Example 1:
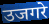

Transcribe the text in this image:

उजगरे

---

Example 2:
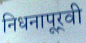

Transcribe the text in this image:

निधनापूर्वी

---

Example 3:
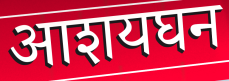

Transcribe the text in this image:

आशयघन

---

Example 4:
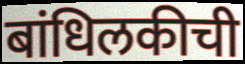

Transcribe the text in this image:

बांधिलकीची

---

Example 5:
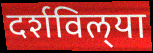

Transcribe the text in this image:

दर्शविल्या